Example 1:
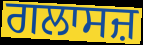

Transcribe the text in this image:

ਗਲਾਸਜ਼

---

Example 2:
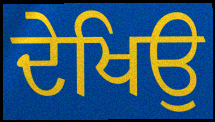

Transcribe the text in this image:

ਦੇਖਿਉ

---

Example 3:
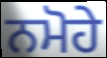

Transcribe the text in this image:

ਨਮੋਹੇ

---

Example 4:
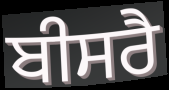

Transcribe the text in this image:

ਬੀਸਰੈ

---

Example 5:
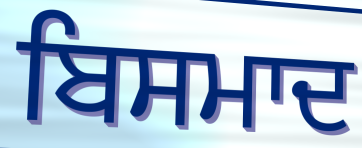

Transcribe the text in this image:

ਬਿਸਮਾਦ